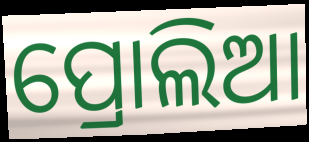
ପ୍ରୋଲିଆ